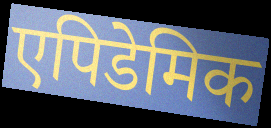
एपिडेमिक